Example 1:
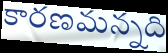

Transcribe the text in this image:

కారణమన్నది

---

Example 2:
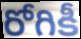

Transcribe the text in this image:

రోగికీ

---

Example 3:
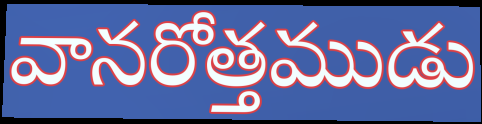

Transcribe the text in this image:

వానరోత్తముడు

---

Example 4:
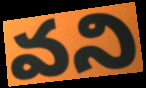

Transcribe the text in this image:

వని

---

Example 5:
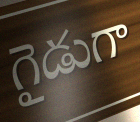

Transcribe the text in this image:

గైడుగా